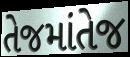
તેજમાંતેજ